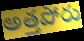
అత్తపోరు